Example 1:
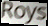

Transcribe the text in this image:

Roys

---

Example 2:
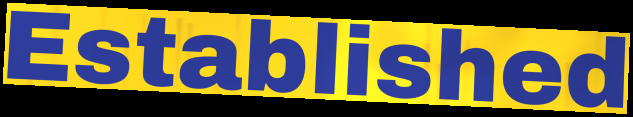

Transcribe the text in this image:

Established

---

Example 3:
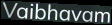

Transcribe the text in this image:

Vaibhavam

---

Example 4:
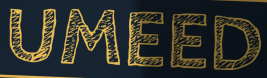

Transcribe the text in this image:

UMEED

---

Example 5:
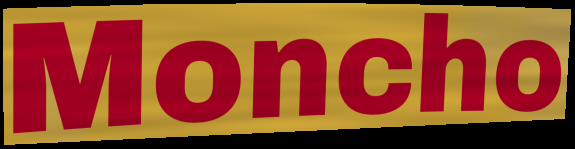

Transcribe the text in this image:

Moncho